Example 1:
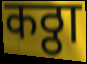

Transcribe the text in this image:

कठ्ठा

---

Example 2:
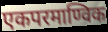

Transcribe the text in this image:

एकपरमाण्विक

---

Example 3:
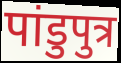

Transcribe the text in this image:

पांडुपुत्र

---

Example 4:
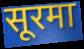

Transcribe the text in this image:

सूरमा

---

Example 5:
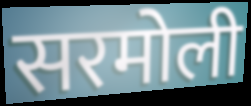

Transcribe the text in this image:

सरमोली